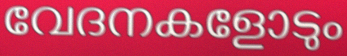
വേദനകളോടും